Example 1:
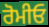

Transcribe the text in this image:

ਰੋਮੀਓ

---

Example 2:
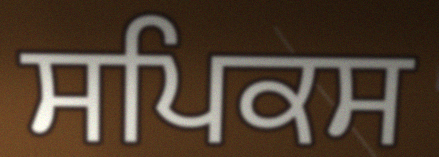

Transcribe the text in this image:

ਸਪਿਕਸ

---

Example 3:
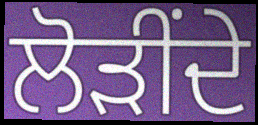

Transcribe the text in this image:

ਲੋੜੀਂਦੇ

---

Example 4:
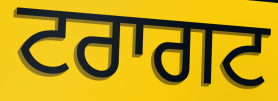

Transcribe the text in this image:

ਟਰਾਗਟ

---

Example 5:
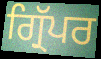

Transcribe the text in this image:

ਗ੍ਰਿੱਪਰ